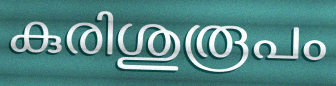
കുരിശുരൂപം